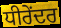
ਧੀਰੇਂਦਰ